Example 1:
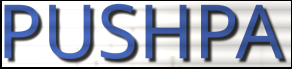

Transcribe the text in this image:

PUSHPA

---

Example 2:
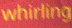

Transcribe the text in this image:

whirling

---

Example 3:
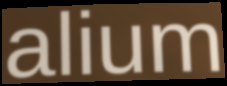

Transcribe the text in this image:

alium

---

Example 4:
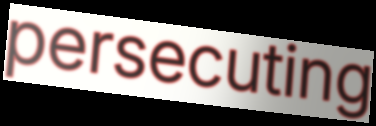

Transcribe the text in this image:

persecuting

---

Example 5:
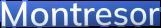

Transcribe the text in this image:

Montresor